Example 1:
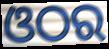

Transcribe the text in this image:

ଓଠର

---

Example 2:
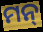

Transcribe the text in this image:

ମନ୍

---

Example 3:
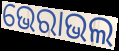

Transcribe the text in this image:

ଭେରାଭଲ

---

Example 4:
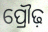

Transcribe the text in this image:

ପ୍ରୌଢ଼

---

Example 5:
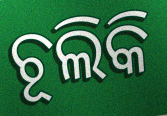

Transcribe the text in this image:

ଚୂଲିକି